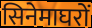
सिनेमाघरों